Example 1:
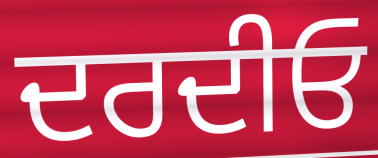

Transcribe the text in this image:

ਦਰਦੀਓ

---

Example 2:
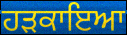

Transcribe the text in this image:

ਹੜਕਾਇਆ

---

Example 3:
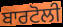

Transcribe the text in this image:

ਬਾਰਟੋਲੀ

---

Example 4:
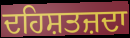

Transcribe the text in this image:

ਦਹਿਸ਼ਤਜ਼ਦਾ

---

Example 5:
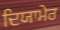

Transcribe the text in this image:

ਦਿਯਾਮੇਰ